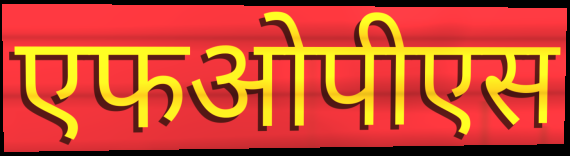
एफओपीएस